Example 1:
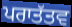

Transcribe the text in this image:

ਪਰਾਤੱਤਵ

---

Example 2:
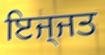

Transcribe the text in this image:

ਇਜ੍ਜਤ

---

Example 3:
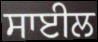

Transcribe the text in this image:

ਸਾਈਲ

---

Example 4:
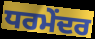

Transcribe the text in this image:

ਧਰਮੇਂਦਰ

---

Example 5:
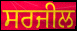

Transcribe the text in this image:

ਸਰਜੀਲ